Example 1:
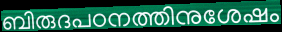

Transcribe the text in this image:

ബിരുദപഠനത്തിനുശേഷം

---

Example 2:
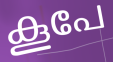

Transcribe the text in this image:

കൂപേ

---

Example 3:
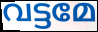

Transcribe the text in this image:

വട്ടമേ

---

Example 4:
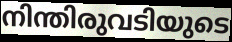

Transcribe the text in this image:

നിന്തിരുവടിയുടെ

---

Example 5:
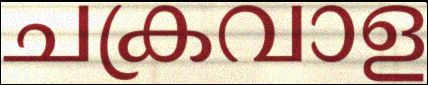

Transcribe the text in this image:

ചക്രവാള